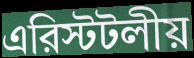
এরিস্টটলীয়